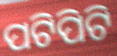
ପଟିପିଟି